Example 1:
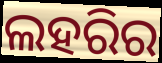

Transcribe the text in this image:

ଲହରିର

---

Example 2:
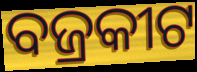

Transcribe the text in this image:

ବଜ୍ରକୀଟ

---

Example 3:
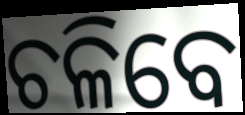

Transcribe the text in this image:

ଚଳିବେ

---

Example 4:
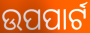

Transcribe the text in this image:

ଉପପାର୍ଟ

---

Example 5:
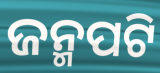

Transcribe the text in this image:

ଜନ୍ମପଟି